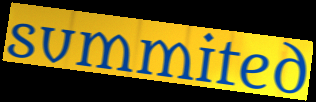
summited